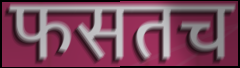
फसतच